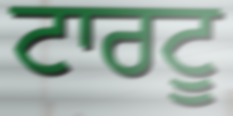
ਟਾਰਟੂ